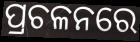
ପ୍ରଚଳନରେ